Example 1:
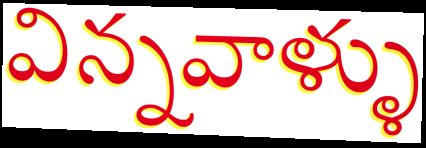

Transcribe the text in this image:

విన్నవాళ్ళు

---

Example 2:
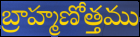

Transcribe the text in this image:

బ్రాహ్మణోత్తము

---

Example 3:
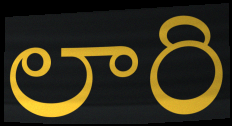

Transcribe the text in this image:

లారి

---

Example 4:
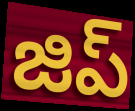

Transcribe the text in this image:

జిప్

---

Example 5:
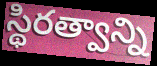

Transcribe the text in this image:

స్థిరత్వాన్ని